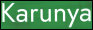
Karunya